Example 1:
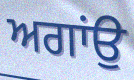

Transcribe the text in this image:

ਅਗਾਂਉ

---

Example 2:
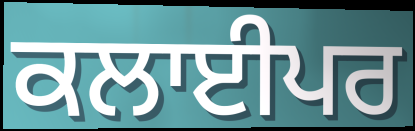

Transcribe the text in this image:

ਕਲਾਈਪਰ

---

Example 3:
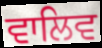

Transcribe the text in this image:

ਵਾਲਿਵ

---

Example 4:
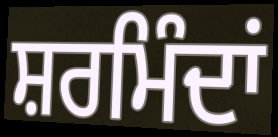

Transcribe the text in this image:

ਸ਼ਰਮਿੰਦਾਂ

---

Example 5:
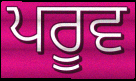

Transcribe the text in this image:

ਪਰੂਵ